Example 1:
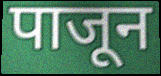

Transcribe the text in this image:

पाजून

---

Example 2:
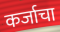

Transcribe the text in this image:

कर्जाचा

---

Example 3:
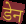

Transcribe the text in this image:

डेन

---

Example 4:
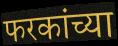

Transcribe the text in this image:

फरकांच्या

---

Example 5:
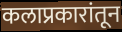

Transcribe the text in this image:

कलाप्रकारांतून